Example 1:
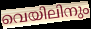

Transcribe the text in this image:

വെയിലിനും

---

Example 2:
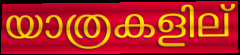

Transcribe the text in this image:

യാത്രകളില്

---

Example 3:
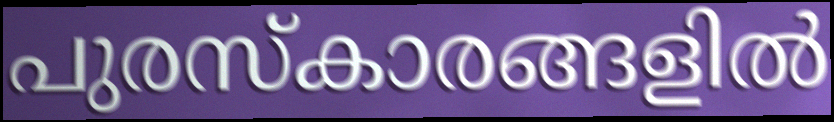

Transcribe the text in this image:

പുരസ്കാരങ്ങളിൽ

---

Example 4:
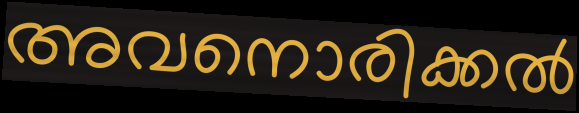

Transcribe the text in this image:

അവനൊരിക്കൽ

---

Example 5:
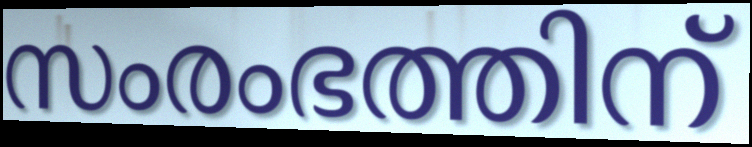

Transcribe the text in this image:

സംരംഭത്തിന്